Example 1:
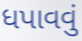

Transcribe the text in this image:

ધપાવવું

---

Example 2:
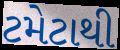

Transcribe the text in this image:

ટમેટાથી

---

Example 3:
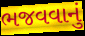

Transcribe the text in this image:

ભજવવાનું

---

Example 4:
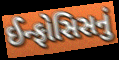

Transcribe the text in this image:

ઈન્ફોસિસનું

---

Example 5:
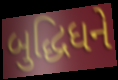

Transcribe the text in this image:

બુદ્ધિધને